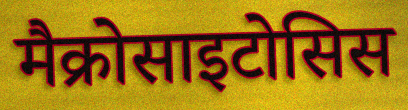
मैक्रोसाइटोसिस